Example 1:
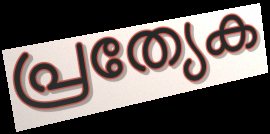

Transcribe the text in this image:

പ്രത്യേക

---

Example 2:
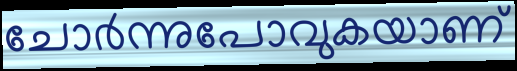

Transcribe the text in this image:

ചോർന്നുപോവുകയാണ്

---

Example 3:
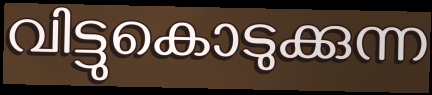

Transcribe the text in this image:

വിട്ടുകൊടുക്കുന്ന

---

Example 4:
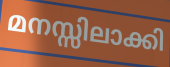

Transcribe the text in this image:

മനസ്സിലാക്കി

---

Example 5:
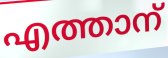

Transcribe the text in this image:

എത്താന്